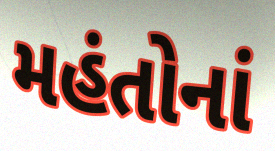
મહંતોનાં